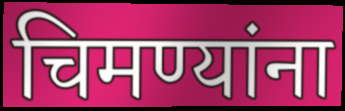
चिमण्यांना